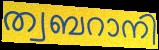
ത്വബറാനി